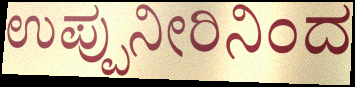
ಉಪ್ಪುನೀರಿನಿಂದ